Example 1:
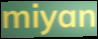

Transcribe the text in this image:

miyan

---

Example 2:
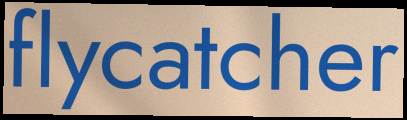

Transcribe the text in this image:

flycatcher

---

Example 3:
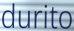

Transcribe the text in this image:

durito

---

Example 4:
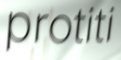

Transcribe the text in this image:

protiti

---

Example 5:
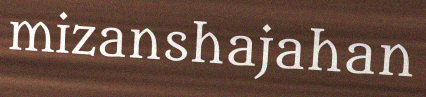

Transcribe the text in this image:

mizanshajahan